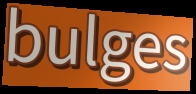
bulges